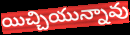
యిచ్చియున్నావు